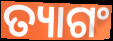
ତ୍ୟାଗଂ